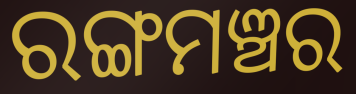
ରଙ୍ଗମଞ୍ଚର